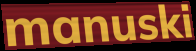
manuski